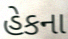
હેકના